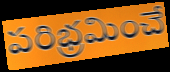
పరిభ్రమించే